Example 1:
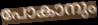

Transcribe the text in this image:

പോകാനും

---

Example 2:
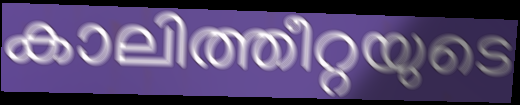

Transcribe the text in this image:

കാലിത്തീറ്റയുടെ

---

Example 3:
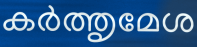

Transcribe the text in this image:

കർത്തൃമേശ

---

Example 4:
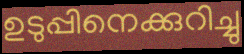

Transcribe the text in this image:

ഉടുപ്പിനെക്കുറിച്ചു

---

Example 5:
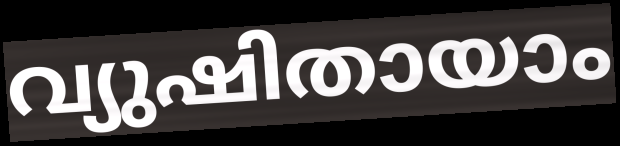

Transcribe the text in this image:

വ്യുഷിതായാം